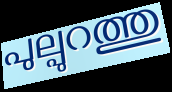
പുല്പുറത്തു